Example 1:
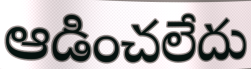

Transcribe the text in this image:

ఆడించలేదు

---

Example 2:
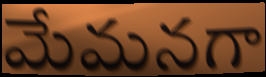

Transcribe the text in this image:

మేమనగా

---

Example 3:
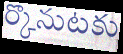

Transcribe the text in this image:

ర్కొనుటకు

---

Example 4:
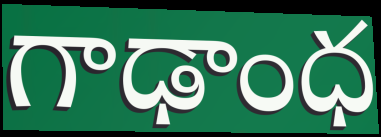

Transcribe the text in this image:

గాఢాంధ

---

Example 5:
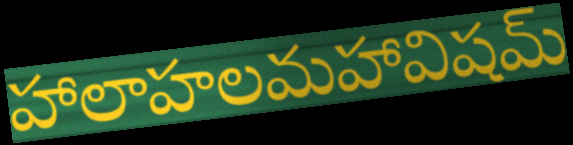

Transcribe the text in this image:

హాలాహలమహావిషమ్